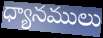
ధ్యానములు